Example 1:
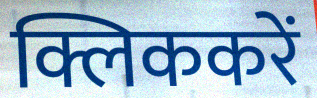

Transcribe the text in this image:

क्लिककरें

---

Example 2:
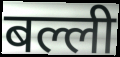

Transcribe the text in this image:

बल्ली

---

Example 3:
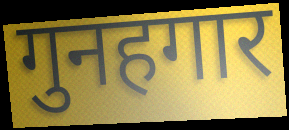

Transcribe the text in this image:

गुनहगार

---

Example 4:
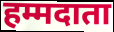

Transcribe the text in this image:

हम्मदाता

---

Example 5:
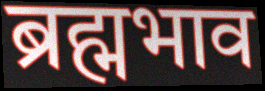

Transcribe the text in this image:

ब्रह्मभाव